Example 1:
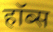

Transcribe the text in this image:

हॉब्स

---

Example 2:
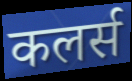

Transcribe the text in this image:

कलर्स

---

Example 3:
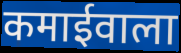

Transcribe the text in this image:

कमाईवाला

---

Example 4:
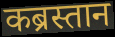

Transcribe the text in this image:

कब्रस्तान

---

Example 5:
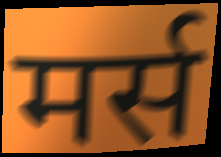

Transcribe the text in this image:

मर्स